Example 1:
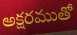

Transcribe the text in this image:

అక్షరముతో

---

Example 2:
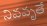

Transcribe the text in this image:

నివవృతే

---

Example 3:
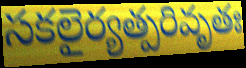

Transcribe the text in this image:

సకలైర్యత్పరివృతః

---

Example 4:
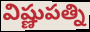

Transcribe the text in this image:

విష్ణుపత్ని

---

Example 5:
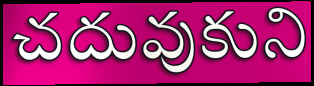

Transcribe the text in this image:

చదువుకుని